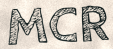
MCR